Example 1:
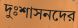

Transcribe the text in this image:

দুঃশাসনদের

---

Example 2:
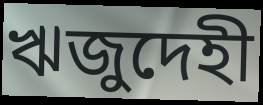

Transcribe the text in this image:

ঋজুদেহী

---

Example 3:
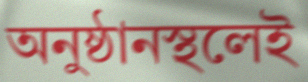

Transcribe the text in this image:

অনুষ্ঠানস্থলেই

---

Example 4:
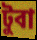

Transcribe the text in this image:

টুবা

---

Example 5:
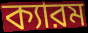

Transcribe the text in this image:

ক্যারম